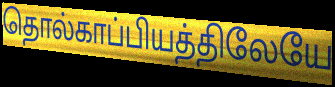
தொல்காப்பியத்திலேயே